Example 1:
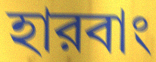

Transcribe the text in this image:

হারবাং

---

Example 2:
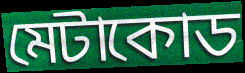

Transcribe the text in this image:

মেটাকোড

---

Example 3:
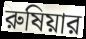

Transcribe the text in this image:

রুষিয়ার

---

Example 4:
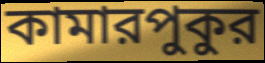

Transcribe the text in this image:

কামারপুকুর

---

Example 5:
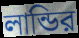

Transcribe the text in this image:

লান্ডির